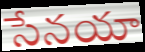
సేనయా